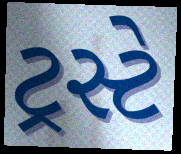
ટ્રસ્ટે